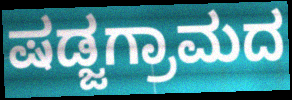
ಷಡ್ಜಗ್ರಾಮದ